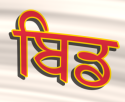
ਬਿਡ